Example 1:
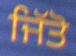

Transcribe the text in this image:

ਜਿੱਤੋ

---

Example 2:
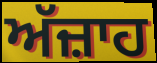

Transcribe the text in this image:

ਅੱਜ਼ਾਹ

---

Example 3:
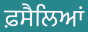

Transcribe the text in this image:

ਫ਼ਸੈਲਿਆਂ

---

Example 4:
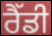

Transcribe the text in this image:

ਰੈੱਡੀ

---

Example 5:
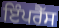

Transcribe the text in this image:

ਇੰਪਰੈੱਸ